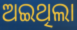
ଅଇଥିଲା